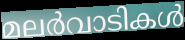
മലർവാടികൾ